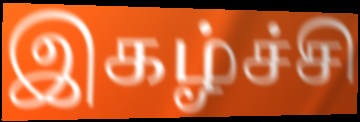
இகழ்ச்சி